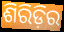
ଶିରିଡ଼ିର